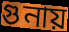
গুনায়